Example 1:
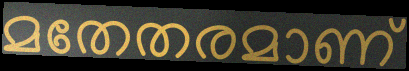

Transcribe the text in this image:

മതേതരമാണ്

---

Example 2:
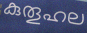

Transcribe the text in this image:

കുതൂഹല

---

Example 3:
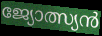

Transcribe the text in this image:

ജ്യോത്സ്യൻ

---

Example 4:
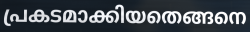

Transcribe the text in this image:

പ്രകടമാക്കിയതെങ്ങനെ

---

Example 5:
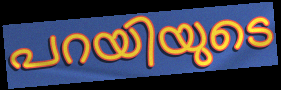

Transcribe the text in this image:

പറയിയുടെ